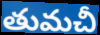
తుమచీ